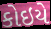
કોઇયે